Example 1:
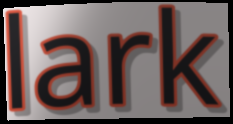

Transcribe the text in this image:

lark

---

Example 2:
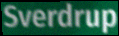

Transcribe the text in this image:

Sverdrup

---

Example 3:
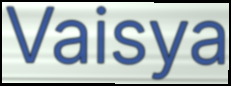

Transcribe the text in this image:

Vaisya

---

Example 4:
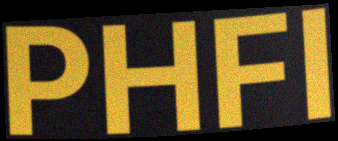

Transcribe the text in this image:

PHFI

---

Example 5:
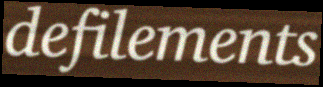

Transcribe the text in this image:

defilements